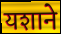
यशाने